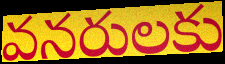
వనరులకు